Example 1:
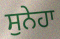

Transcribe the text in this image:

ਸੁਨੇਹਾ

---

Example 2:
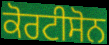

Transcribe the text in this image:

ਕੋਰਟੀਸੋਨ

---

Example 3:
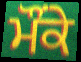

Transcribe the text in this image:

ਮੌੰਕੇ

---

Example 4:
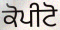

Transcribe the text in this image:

ਕੋਪੀਟੋ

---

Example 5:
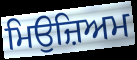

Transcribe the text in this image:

ਮਿਉਜ਼ਿਅਮ